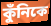
কুঁনিকে